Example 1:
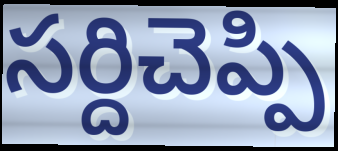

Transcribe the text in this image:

సర్దిచెప్పి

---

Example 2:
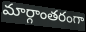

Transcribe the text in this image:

మార్గాంతరంగా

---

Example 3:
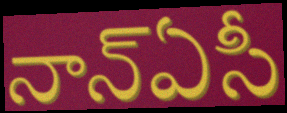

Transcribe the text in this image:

నాన్ఏసీ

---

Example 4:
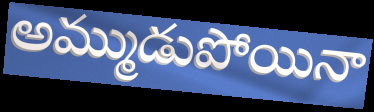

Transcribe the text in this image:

అమ్ముడుపోయినా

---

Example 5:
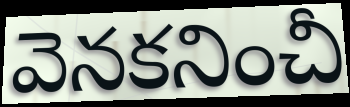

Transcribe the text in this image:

వెనకనించీ